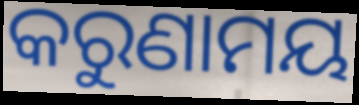
କରୁଣାମୟ